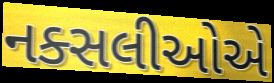
નક્સલીઓએ